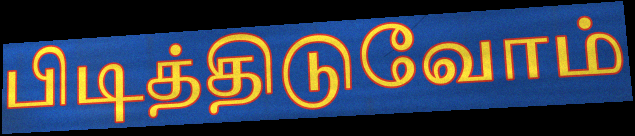
பிடித்திடுவோம்